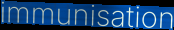
immunisation